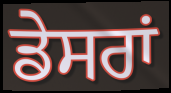
ਡੇਸਰਾਂ